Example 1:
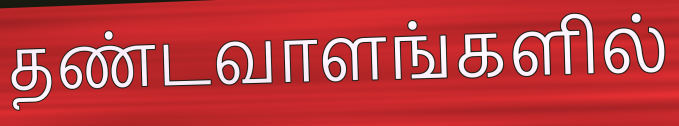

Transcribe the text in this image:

தண்டவாளங்களில்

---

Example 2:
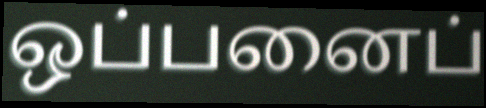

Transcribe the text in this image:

ஒப்பனைப்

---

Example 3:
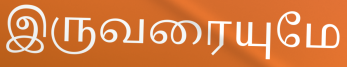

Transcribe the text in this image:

இருவரையுமே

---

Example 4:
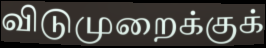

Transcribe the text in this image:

விடுமுறைக்குக்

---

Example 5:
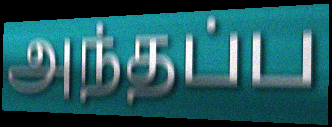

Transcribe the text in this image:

அந்தப்ப